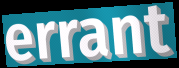
errant